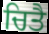
ਚਿਤੈ